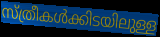
സ്ത്രീകൾക്കിടയിലുള്ള